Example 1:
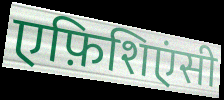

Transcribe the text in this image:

एफ़िशिएंसी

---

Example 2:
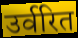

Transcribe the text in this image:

उर्वरित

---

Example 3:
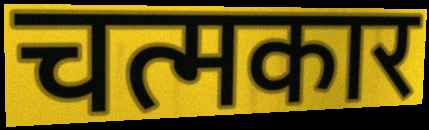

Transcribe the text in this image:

चत्मकार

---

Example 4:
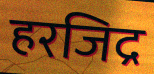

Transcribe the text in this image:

हरजिद्र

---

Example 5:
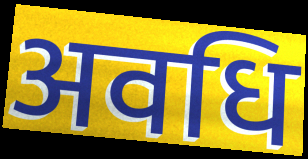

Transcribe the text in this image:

अवधि